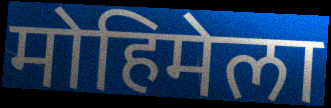
मोहिमेला